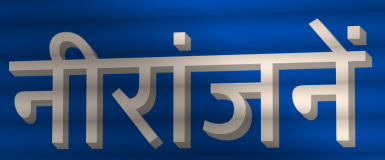
नीरांजनें